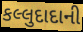
કલ્લુદાદાની